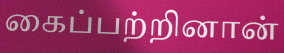
கைப்பற்றினான்